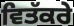
ਵਿਤੱਕਰੇ